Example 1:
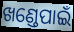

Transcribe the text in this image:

ଖଣ୍ଡେପାଇଁ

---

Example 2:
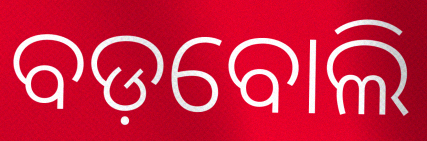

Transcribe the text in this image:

ବଡ଼ବୋଲି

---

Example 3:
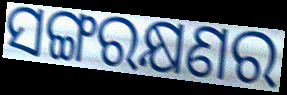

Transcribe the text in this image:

ସଙ୍ଗରକ୍ଷଣର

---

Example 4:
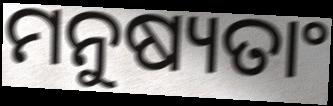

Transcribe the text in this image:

ମନୁଷ୍ୟତାଂ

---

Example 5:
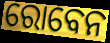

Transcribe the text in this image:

ରୋବେନ